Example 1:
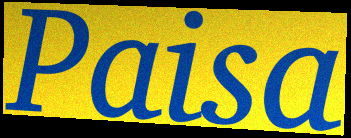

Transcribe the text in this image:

Paisa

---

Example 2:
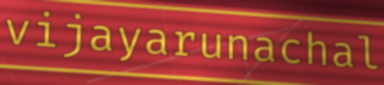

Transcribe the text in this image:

vijayarunachal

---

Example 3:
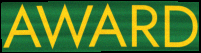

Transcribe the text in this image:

AWARD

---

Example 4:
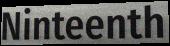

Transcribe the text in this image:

Ninteenth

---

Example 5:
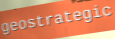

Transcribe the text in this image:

geostrategic